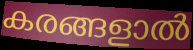
കരങ്ങളാൽ